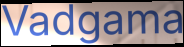
Vadgama